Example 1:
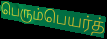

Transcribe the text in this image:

பெரும்பெயர்த்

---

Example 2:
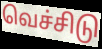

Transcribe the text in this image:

வெச்சிடு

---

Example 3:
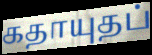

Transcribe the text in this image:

கதாயுதப்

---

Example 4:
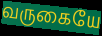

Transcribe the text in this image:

வருகையே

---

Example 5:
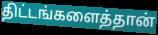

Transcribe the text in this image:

திட்டங்களைத்தான்